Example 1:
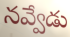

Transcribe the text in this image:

నవ్వేడు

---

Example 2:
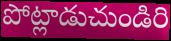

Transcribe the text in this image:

పోట్లాడుచుండిరి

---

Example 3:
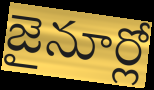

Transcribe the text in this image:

జైనూర్లో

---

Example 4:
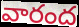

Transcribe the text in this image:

వారంద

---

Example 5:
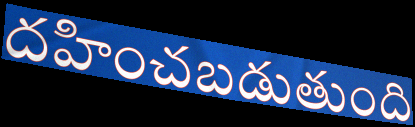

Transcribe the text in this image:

దహించబడుతుంది